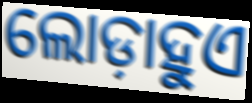
ଲୋଡ଼ାହୁଏ